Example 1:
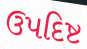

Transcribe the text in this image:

ઉપદિષ્ટ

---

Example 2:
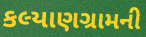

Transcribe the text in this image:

કલ્યાણગ્રામની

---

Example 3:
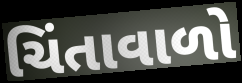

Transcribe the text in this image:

ચિંતાવાળો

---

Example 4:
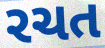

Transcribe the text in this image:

રચત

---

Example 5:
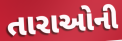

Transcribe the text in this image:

તારાઓની